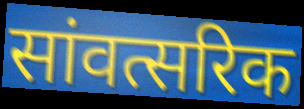
सांवत्सरिक